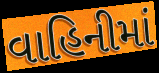
વાહિનીમાં